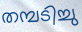
തമ്പടിച്ചു